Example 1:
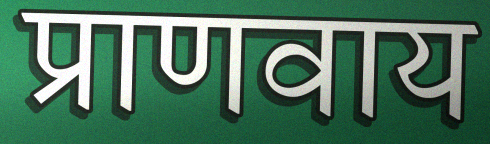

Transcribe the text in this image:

प्राणवाय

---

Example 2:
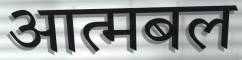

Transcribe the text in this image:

आत्मबल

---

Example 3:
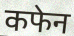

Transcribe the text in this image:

कफेन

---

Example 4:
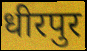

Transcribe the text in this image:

धीरपुर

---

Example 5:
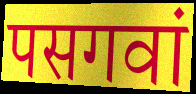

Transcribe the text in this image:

पसगवां